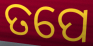
ତପେ